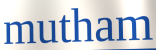
mutham